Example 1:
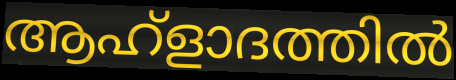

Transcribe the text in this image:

ആഹ്ളാദത്തിൽ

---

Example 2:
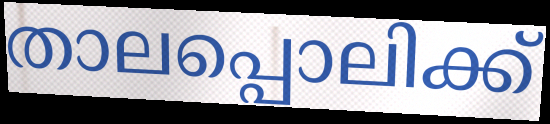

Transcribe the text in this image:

താലപ്പൊലിക്ക്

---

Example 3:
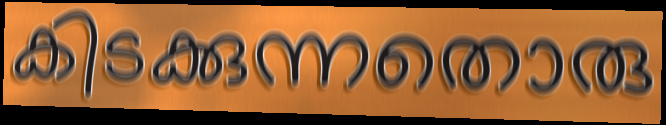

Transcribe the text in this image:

കിടക്കുന്നതൊരു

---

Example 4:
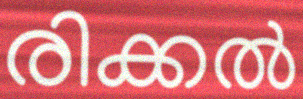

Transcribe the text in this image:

രിക്കൽ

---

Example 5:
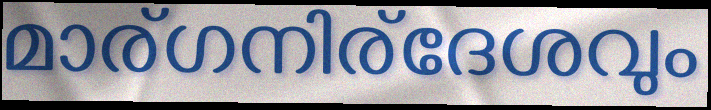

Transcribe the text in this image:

മാര്ഗനിര്ദേശവും